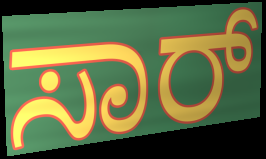
ಸಾರ್